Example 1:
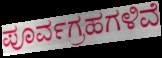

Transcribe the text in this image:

ಪೂರ್ವಗ್ರಹಗಳಿವೆ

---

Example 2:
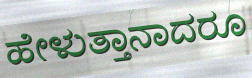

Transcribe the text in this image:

ಹೇಳುತ್ತಾನಾದರೂ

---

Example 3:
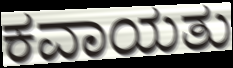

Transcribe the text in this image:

ಕವಾಯತು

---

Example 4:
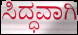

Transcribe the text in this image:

ಸಿದ್ಧವಾಗಿ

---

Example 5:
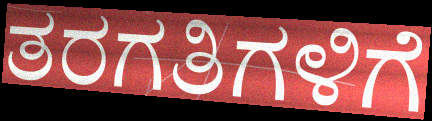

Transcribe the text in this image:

ತರಗತಿಗಳಿಗೆ